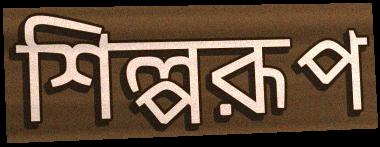
শিল্পরূপ